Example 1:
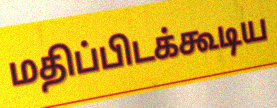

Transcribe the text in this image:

மதிப்பிடக்கூடிய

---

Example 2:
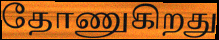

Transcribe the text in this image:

தோணுகிறது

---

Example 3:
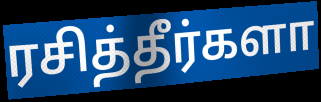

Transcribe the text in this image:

ரசித்தீர்களா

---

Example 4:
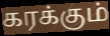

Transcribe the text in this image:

கரக்கும்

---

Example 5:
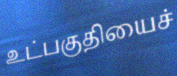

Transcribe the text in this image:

உட்பகுதியைச்